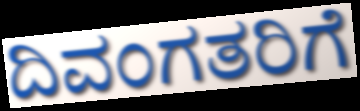
ದಿವಂಗತರಿಗೆ